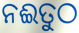
ନଈତୁଠ